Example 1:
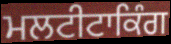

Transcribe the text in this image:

ਮਲਟੀਟਾਕਿੰਗ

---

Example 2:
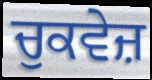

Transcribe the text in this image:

ਚੁਕਵੇਜ਼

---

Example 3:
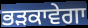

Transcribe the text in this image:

ਭੜਕਾਵੇਗਾ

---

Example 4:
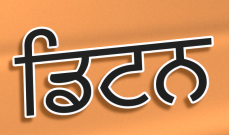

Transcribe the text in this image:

ਡਿਟਨ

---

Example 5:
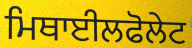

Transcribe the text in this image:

ਮਿਥਾਈਲਫੋਲੇਟ